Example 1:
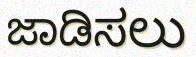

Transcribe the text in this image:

ಜಾಡಿಸಲು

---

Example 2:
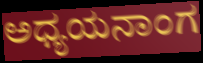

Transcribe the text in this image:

ಅಧ್ಯಯನಾಂಗ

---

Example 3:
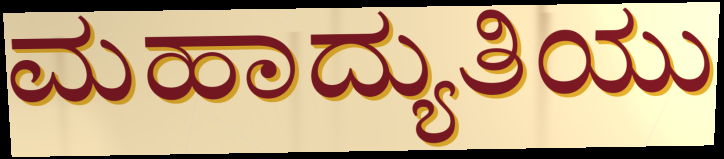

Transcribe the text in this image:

ಮಹಾದ್ಯುತಿಯು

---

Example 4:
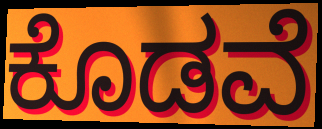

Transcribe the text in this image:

ಕೊಡವೆ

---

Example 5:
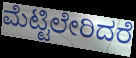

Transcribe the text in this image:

ಮೆಟ್ಟಿಲೇರಿದರೆ